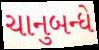
ચાનુબન્ધે